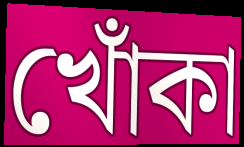
খোঁকা